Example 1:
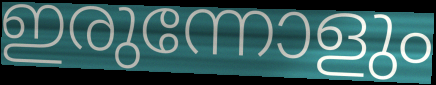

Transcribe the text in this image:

ഇരുന്നോളും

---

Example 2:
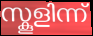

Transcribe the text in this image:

സ്കൂളിന്ന്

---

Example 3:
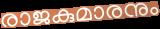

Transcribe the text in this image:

രാജകുമാരനും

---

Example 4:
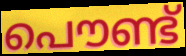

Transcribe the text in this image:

പൌണ്ട്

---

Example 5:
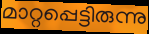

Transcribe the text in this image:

മാറ്റപ്പെട്ടിരുന്നു